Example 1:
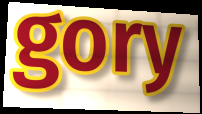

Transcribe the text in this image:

gory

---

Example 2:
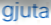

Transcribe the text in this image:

gjuta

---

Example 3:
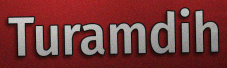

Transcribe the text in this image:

Turamdih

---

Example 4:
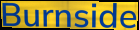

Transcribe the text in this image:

Burnside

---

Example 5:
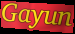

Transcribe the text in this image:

Gayun